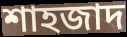
শাহজাদ